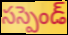
సస్పెండ్